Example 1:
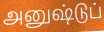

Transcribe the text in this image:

அனுஷ்டுப்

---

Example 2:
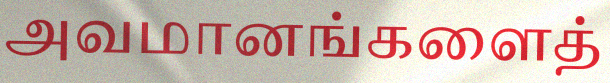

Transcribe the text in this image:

அவமானங்களைத்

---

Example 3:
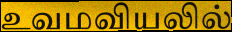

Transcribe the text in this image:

உவமவியலில்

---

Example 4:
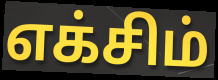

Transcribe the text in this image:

எக்சிம்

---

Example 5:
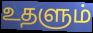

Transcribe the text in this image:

உதளும்